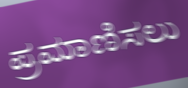
ಪ್ರಮಾಣಿಸಲು